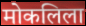
मोकलिला